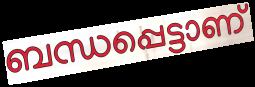
ബന്ധപ്പെട്ടാണ്